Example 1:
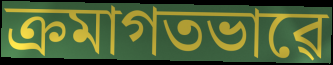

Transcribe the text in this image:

ক্ৰমাগতভাৱে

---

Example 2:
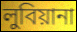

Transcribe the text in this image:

লুবিয়ানা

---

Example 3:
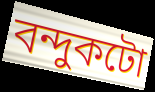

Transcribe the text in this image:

বন্দুকটো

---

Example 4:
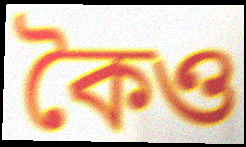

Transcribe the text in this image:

কৈও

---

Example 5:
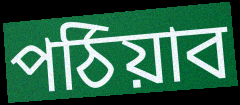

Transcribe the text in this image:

পঠিয়াব